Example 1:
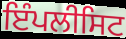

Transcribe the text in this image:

ਇੰਪਲੀਸਿਟ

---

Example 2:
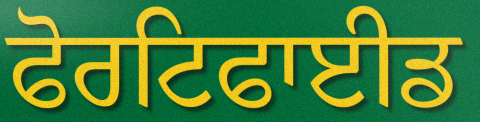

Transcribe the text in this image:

ਫੋਰਟਿਫਾਈਡ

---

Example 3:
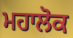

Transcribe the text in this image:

ਮਹਾਲੋਕ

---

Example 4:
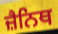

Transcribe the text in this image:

ਜ਼ੈਨਿਥ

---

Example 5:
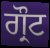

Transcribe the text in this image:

ਗ੍ਰੌਟ